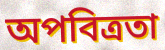
অপবিত্রতা